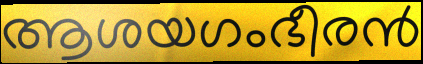
ആശയഗംഭീരൻ